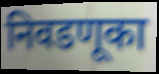
निवडणूका